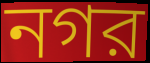
নগর